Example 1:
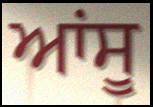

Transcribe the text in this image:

ਆਂਸੂ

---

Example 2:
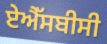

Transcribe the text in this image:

ਏਐੱਸਬੀਸੀ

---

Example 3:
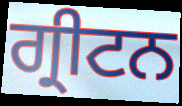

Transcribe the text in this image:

ਗ੍ਰੀਟਨ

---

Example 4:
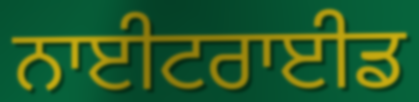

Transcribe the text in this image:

ਨਾਈਟਰਾਈਡ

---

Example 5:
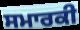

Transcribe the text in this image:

ਸਮਾਰਕੀ